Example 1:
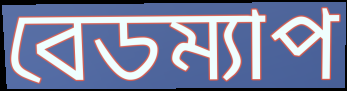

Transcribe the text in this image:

বেডম্যাপ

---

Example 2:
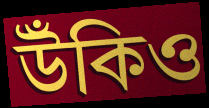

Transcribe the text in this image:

উঁকিও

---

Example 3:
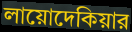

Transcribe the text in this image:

লায়োদেকিয়ার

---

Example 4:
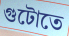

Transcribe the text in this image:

গুটোতে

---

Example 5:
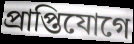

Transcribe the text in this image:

প্রাপ্তিযোগে